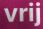
vrij